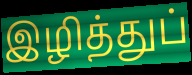
இழித்துப்